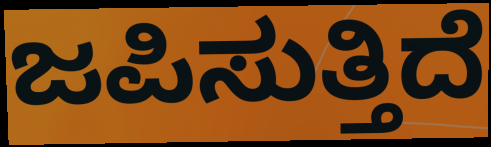
ಜಪಿಸುತ್ತಿದೆ